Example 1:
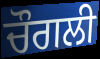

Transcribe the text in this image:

ਚੌਗਲੀ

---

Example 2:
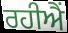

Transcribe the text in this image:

ਰਹੀਐਂ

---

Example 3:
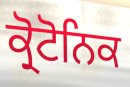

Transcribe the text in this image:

ਕ੍ਰੋਟੋਨਿਕ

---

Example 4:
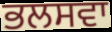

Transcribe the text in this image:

ਭਲਸਵਾ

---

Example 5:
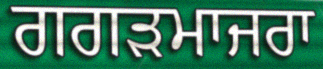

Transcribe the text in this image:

ਗਗੜਮਾਜਰਾ